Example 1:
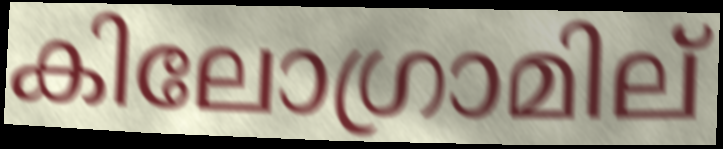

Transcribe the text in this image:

കിലോഗ്രാമില്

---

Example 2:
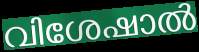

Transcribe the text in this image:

വിശേഷാൽ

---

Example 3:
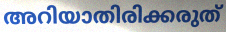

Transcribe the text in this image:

അറിയാതിരിക്കരുത്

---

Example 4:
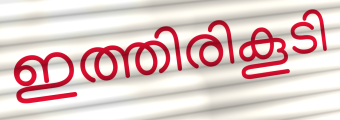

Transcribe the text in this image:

ഇത്തിരികൂടി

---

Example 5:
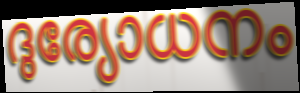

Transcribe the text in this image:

ദുര്യോധനം